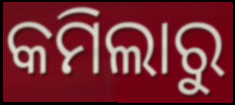
କମିଲାରୁ